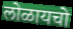
लोळायचो